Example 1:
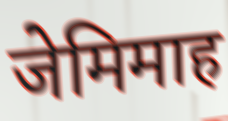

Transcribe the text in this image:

जेमिमाह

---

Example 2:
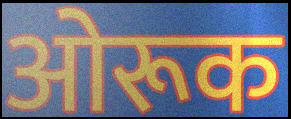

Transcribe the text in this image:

ओरूक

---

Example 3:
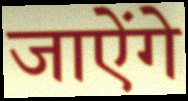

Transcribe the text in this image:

जाऐंगे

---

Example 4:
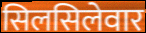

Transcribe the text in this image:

सिलसिलेवार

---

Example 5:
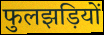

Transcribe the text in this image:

फुलझड़ियों